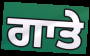
ਗਾਤੇ